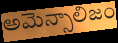
అమెన్సాలిజం